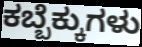
ಕಬ್ಬೆಕ್ಕುಗಳು